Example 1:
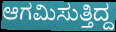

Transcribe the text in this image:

ಆಗಮಿಸುತ್ತಿದ್ದ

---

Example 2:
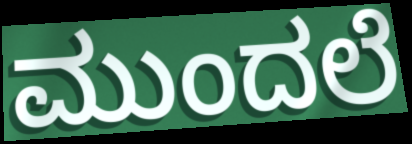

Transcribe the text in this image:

ಮುಂದಲೆ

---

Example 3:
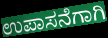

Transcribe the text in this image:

ಉಪಾಸನೆಗಾಗಿ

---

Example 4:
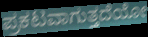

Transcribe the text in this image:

ಪ್ರಕಟವಾಗುತ್ತದೆಯೋ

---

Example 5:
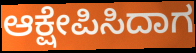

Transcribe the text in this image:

ಆಕ್ಷೇಪಿಸಿದಾಗ